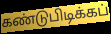
கண்டுபிடிக்கப்